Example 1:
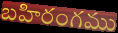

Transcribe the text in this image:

బహిరంగము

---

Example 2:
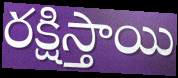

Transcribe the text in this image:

రక్షిస్తాయి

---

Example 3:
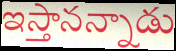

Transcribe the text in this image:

ఇస్తానన్నాడు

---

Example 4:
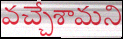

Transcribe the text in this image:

వచ్చేశామని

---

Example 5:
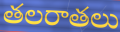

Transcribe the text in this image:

తలరాతలు